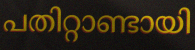
പതിറ്റാണ്ടായി